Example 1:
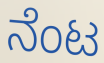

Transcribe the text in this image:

ನೆಂಟ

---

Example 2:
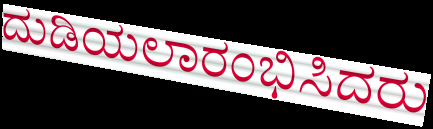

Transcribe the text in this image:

ದುಡಿಯಲಾರಂಭಿಸಿದರು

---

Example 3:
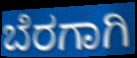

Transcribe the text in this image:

ಬೆರಗಾಗಿ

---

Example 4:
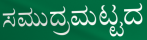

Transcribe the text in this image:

ಸಮುದ್ರಮಟ್ಟದ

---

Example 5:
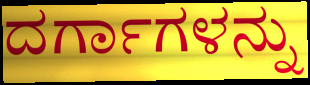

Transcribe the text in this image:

ದರ್ಗಾಗಳನ್ನು